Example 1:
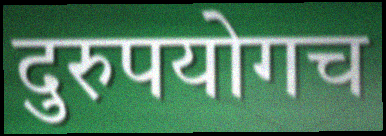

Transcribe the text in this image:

दुरुपयोगच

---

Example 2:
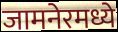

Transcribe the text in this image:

जामनेरमध्ये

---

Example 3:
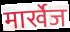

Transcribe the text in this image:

मार्खेज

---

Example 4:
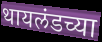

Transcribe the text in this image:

थायलंडच्या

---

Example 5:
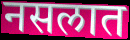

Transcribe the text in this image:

नसलात